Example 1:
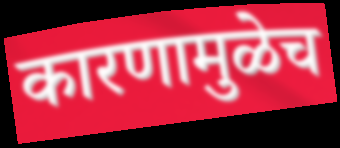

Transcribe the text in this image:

कारणामुळेच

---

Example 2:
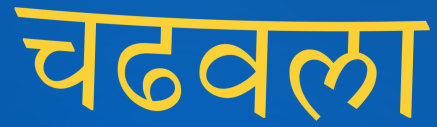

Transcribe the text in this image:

चढवला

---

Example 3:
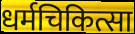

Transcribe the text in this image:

धर्मचिकित्सा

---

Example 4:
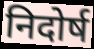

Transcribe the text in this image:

निदोर्ष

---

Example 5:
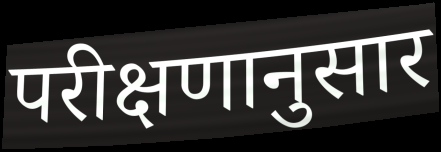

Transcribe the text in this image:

परीक्षणानुसार